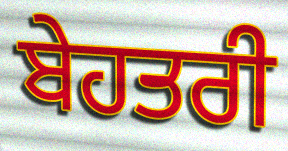
ਬੇਹਤਰੀ